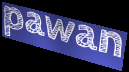
pawan